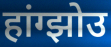
हांग्झोउ